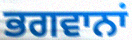
ਭਗਵਾਨਾਂ